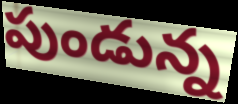
పుండున్న